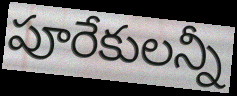
పూరేకులన్నీ